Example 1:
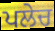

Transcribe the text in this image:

ਪਲੇਚ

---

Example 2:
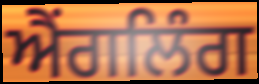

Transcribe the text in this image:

ਐਂਗਲਿੰਗ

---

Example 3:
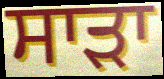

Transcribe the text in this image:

ਸਾੜਾ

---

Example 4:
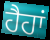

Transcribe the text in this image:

ਹੈਹਾਂ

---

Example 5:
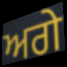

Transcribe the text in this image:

ਅਗੇ